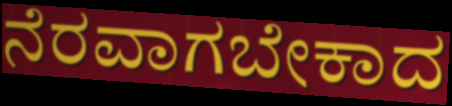
ನೆರವಾಗಬೇಕಾದ